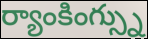
ర్యాంకింగ్స్ను